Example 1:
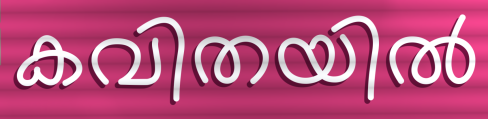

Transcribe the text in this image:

കവിതയിൽ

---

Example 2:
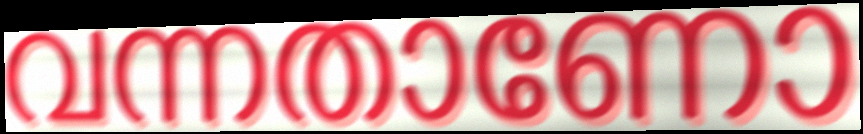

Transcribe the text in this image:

വന്നതാണോ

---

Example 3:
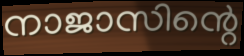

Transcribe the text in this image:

നാജാസിന്റെ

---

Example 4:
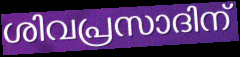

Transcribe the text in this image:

ശിവപ്രസാദിന്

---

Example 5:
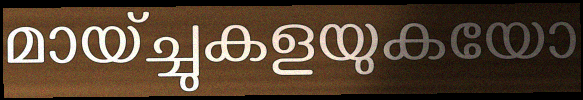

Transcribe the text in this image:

മായ്ച്ചുകളയുകയോ